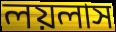
লয়লাস